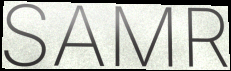
SAMR